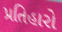
પ્રતિહારો